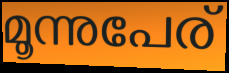
മൂന്നുപേര്